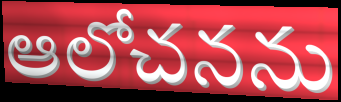
ఆలోచనను